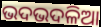
ଭଦଭଦଳିଆ